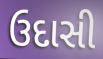
ઉદાસી